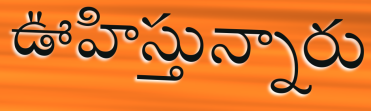
ఊహిస్తున్నారు